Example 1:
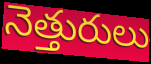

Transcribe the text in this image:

నెత్తురులు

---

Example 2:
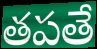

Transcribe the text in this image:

తపతే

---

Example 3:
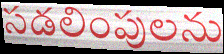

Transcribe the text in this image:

సడలింపులను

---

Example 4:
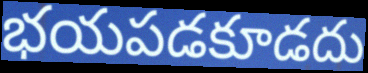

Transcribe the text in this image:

భయపడకూడదు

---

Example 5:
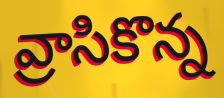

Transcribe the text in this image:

వ్రాసికొన్న